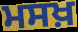
ਮਸਖ਼